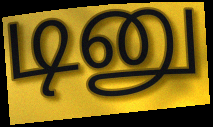
டினு